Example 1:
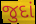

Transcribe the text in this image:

જુદાં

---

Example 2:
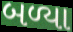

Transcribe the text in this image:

બળ્યા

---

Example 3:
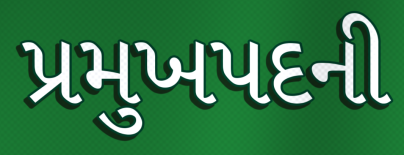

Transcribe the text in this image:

પ્રમુખપદની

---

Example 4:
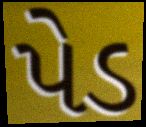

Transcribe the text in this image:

પેડ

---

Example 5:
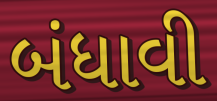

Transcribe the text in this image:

બંધાવી